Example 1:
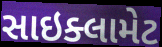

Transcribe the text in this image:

સાઇક્લામેટ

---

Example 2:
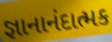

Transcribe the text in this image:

જ્ઞાનાનંદાત્મક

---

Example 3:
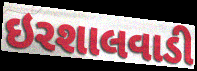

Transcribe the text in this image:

ઇરશાલવાડી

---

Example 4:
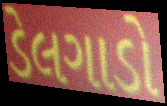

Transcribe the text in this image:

ડેલગાડો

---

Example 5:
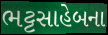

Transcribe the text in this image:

ભટ્ટસાહેબના